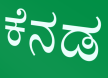
ಕೆನಡ